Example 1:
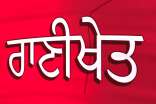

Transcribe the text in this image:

ਰਾਣੀਖੇਤ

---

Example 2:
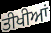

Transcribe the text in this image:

ਤੀਖੀਆਂ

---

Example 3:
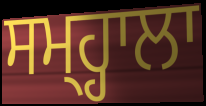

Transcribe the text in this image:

ਸਮ੍ਹ੍ਹਾਲਾ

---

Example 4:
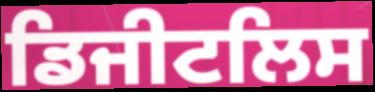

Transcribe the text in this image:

ਡਿਜੀਟਲਿਸ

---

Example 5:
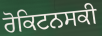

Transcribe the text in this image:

ਰੋਕਿਟਨਸਕੀ